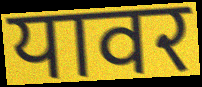
यावर